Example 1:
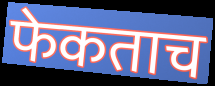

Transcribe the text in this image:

फेकताच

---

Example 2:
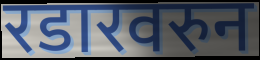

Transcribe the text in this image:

रडारवरुन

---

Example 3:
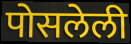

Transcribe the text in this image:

पोसलेली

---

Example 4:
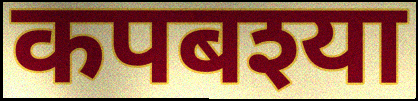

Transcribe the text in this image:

कपबश्या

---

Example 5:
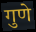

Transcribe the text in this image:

गुणे